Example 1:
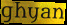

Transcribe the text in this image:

ghyan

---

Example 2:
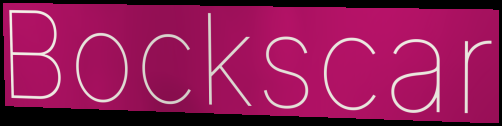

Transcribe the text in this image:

Bockscar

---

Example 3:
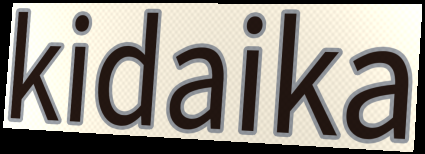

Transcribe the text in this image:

kidaika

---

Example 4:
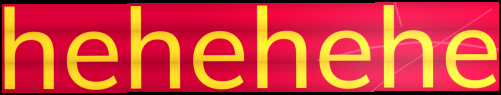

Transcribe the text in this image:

hehehehe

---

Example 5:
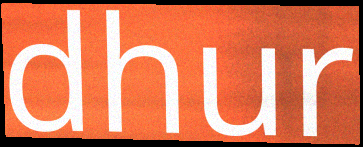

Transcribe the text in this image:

dhur